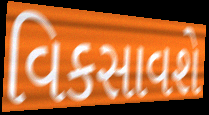
વિકસાવશે